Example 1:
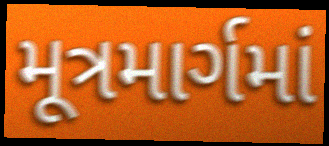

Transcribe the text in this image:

મૂત્રમાર્ગમાં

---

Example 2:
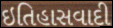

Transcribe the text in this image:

ઇતિહાસવાદી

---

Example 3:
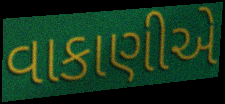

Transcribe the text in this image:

વાકાણીએ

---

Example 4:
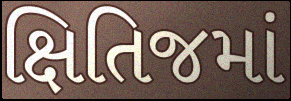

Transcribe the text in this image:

ક્ષિતિજમાં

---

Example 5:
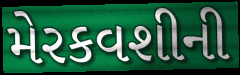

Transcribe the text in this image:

મેરકવશીની